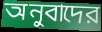
অনুবাদের